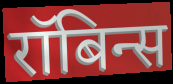
रॉबिन्स